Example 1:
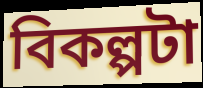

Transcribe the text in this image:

বিকল্পটা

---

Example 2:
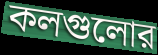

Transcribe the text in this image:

কলগুলোর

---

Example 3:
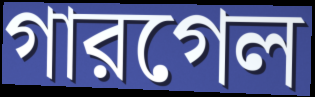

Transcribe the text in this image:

গারগেল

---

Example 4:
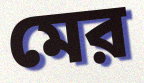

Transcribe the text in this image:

মের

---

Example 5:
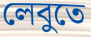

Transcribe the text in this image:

লেবুতে